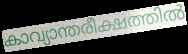
കാവ്യാന്തരീക്ഷത്തിൽ